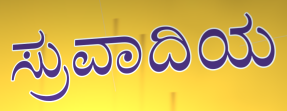
ಸ್ರುವಾದಿಯ